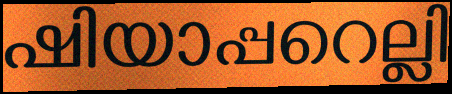
ഷിയാപ്പറെല്ലി